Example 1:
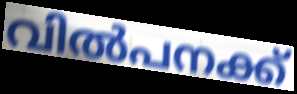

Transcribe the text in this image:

വിൽപനക്ക്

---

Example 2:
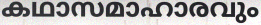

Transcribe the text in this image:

കഥാസമാഹാരവും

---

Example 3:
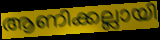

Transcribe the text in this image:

ആണിക്കല്ലായി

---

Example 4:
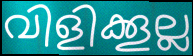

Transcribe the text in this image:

വിളിക്കൂല്ല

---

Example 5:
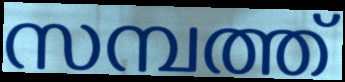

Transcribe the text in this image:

സമ്പത്ത്